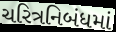
ચરિત્રનિબંધમાં